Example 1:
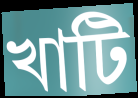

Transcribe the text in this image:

খাটি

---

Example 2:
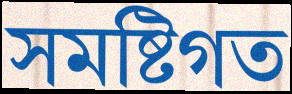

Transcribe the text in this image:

সমষ্টিগত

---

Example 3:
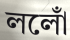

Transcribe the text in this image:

ললোঁ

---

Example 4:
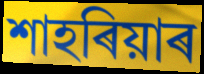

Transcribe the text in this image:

শাহৰিয়াৰ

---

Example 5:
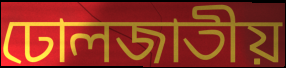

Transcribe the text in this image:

ঢোলজাতীয়